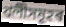
থলীসমূহৰ